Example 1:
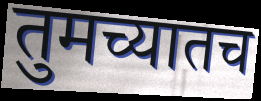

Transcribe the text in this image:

तुमच्यातच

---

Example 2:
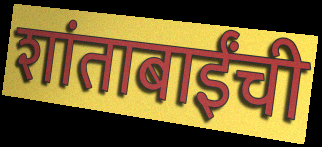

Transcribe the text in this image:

शांताबाईंची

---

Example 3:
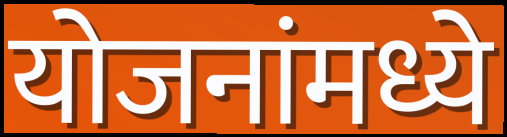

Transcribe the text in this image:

योजनांमध्ये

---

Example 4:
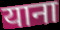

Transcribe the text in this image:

याना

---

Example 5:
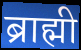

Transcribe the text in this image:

ब्राह्मी